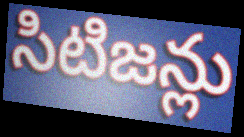
సిటిజన్లు